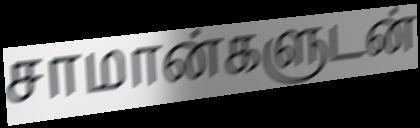
சாமான்களுடன்